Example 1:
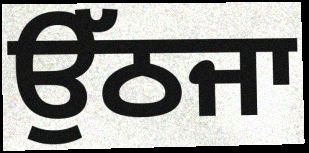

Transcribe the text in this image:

ਉੱਠਜਾ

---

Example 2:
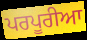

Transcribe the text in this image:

ਪਰਪੂਰੀਆ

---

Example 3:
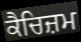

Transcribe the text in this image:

ਕੈਚਿਜ਼ਮ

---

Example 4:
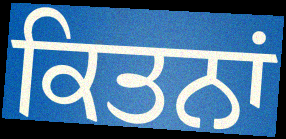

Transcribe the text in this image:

ਕਿਤਨਾਂ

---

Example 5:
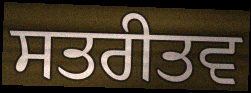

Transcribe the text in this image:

ਸਤਰੀਤਵ